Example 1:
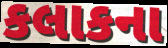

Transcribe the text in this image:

કલાકના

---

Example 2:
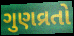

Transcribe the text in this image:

ગુણવ્રતો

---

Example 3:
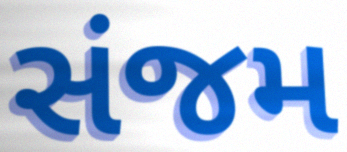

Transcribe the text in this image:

સંજમ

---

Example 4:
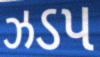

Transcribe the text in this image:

ઝડપ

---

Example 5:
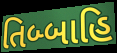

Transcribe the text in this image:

તિબ્બાહિ